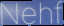
Nehf